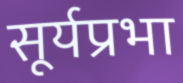
सूर्यप्रभा